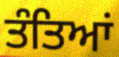
ਤੰਤਿਆਂ